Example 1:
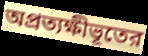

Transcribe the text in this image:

অপ্রত্যক্ষীভূতের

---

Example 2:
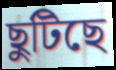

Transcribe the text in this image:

ছুটিছে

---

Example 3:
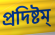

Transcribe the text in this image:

প্রদিষ্টম্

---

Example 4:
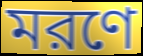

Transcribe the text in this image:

মরণে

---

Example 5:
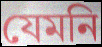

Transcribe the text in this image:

যেমনি